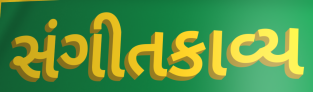
સંગીતકાવ્ય